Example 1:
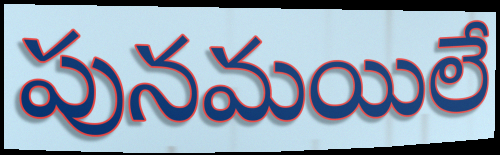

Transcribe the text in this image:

పునమయిలే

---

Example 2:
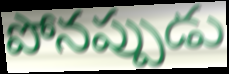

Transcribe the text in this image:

పోనప్పుడు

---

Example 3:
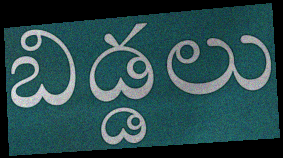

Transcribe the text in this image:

బిడ్డలు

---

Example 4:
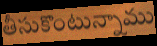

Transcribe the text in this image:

తీసుకొంటున్నాము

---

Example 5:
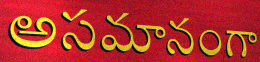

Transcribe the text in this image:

అసమానంగా